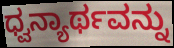
ಧ್ವನ್ಯಾರ್ಥವನ್ನು